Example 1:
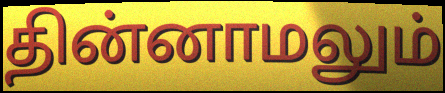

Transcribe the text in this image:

தின்னாமலும்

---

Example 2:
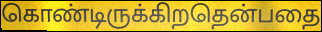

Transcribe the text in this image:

கொண்டிருக்கிறதென்பதை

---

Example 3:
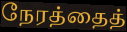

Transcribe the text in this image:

நேரத்தைத்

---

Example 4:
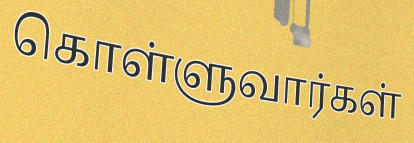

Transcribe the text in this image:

கொள்ளுவார்கள்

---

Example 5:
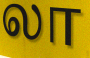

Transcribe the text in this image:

லா